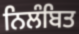
ਨਿਲੰਬਿਤ